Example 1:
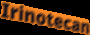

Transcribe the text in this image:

Irinotecan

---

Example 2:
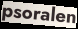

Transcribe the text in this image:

psoralen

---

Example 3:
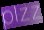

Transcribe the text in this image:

plzz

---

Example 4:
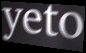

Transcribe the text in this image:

yeto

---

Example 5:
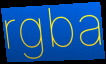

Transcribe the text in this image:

rgba